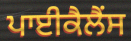
ਪਾਈਕੈਲੈਂਸ